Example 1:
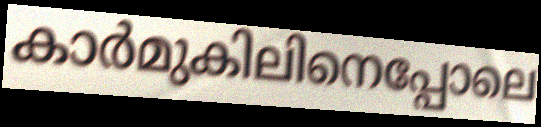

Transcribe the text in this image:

കാർമുകിലിനെപ്പോലെ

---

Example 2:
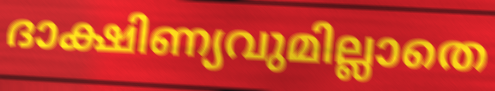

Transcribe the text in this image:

ദാക്ഷിണ്യവുമില്ലാതെ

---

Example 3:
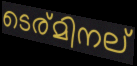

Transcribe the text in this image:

ടെര്മിനല്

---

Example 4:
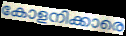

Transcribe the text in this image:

കോളനിക്കാരെ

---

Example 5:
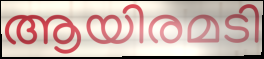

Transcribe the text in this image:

ആയിരമടി